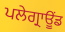
ਪਲੇਗ੍ਰਾਊਂਡ